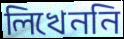
লিখেননি